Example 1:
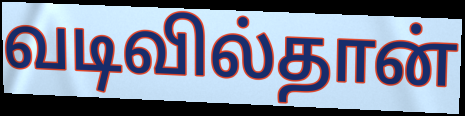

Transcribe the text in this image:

வடிவில்தான்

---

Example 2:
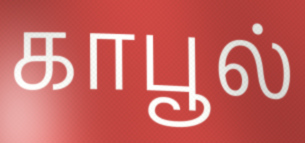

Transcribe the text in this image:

காபூல்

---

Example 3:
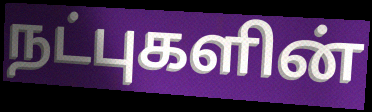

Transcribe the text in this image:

நட்புகளின்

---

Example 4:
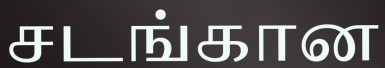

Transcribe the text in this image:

சடங்கான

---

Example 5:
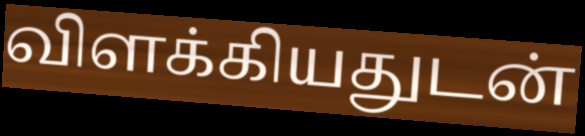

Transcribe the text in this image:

விளக்கியதுடன்